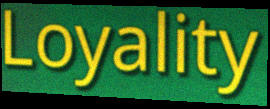
Loyality